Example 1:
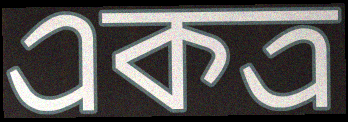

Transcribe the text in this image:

একত্র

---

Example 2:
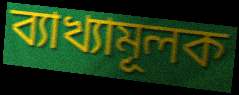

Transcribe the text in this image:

ব্যাখ্যামূলক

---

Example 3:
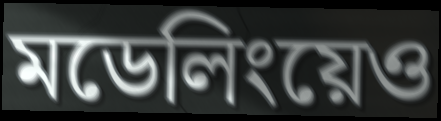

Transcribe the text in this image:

মডেলিংয়েও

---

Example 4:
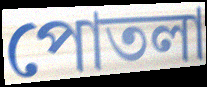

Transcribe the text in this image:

পোতলা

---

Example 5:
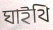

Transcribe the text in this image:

ঘাইথি